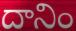
దానిం